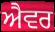
ਐਵਰ